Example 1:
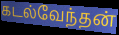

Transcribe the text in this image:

கடல்வேந்தன்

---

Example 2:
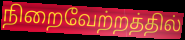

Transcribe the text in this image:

நிறைவேற்றத்தில்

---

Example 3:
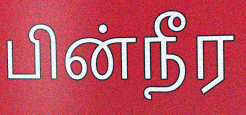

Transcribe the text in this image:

பின்நீர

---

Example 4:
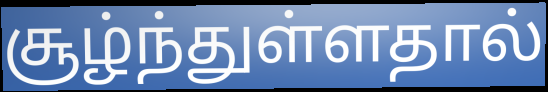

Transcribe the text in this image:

சூழ்ந்துள்ளதால்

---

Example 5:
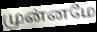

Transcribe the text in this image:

முன்னமே